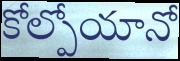
కోల్పోయానో